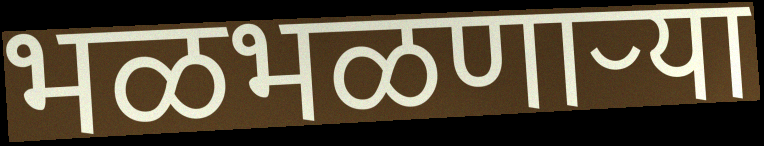
भळभळणाऱ्या